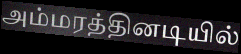
அம்மரத்தினடியில்